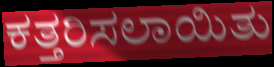
ಕತ್ತರಿಸಲಾಯಿತು